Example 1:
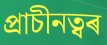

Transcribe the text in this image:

প্ৰাচীনত্বৰ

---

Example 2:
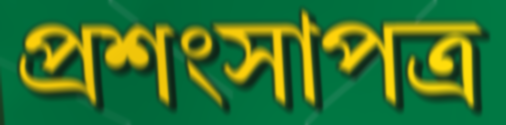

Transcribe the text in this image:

প্ৰশংসাপত্ৰ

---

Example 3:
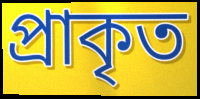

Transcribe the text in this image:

প্ৰাকৃত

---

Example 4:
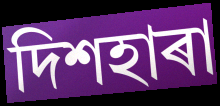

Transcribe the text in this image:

দিশহাৰা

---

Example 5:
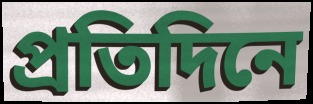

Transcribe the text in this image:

প্ৰতিদিনে